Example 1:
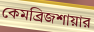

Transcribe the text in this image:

কেমব্রিজশায়ার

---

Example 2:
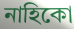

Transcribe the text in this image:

নাহিকো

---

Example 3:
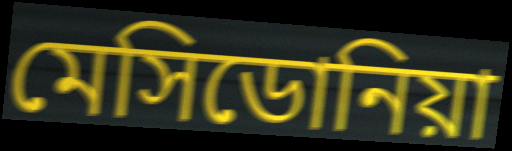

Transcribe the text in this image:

মেসিডোনিয়া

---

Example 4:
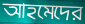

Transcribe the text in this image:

আহমেদের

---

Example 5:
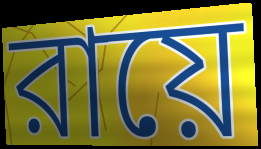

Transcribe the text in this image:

রায়ে